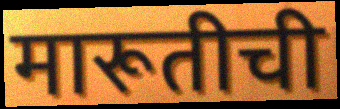
मारूतीची